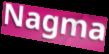
Nagma